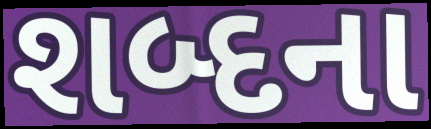
શબ્દના